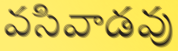
వసివాడవు